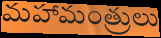
మహామంత్రులు